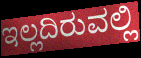
ಇಲ್ಲದಿರುವಲ್ಲಿ